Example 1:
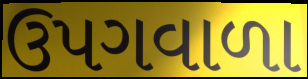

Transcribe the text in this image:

ઉપગવાળા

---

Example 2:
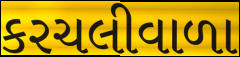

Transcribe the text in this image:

કરચલીવાળા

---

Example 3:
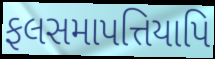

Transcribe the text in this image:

ફલસમાપત્તિયાપિ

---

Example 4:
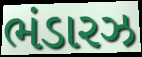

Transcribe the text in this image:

ભંડારઝ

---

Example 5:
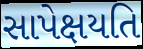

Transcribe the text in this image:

સાપેક્ષયતિ